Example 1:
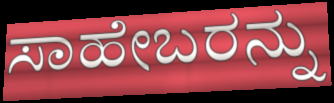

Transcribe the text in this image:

ಸಾಹೇಬರನ್ನು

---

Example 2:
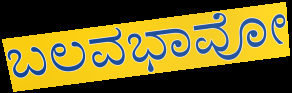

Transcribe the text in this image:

ಬಲವಭಾವೋ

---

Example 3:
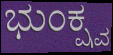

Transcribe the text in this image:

ಭುಂಕ್ಷ್ವ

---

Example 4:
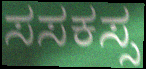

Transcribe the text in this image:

ಸಸಕಸ್ಸ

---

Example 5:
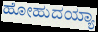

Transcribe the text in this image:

ಹೋಹುದಯ್ಯಾ